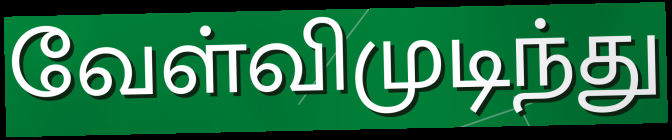
வேள்விமுடிந்து